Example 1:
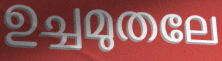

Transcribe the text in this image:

ഉച്ചമുതലേ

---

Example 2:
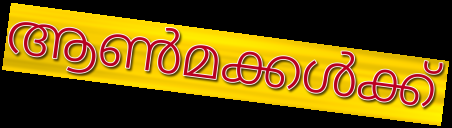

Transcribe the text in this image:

ആൺമക്കൾക്ക്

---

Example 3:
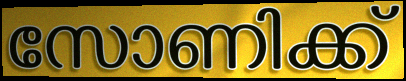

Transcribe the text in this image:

സോണിക്ക്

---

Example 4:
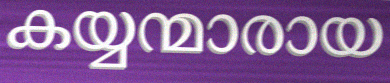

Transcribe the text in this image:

കയ്യന്മാരായ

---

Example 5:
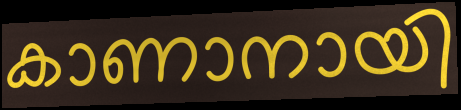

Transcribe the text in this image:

കാണാനായി